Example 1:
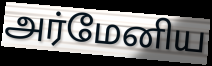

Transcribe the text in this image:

அர்மேனிய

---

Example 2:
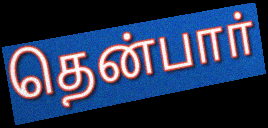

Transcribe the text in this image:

தென்பார்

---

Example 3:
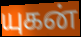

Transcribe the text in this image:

யுகன்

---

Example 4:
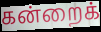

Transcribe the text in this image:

கன்றைக்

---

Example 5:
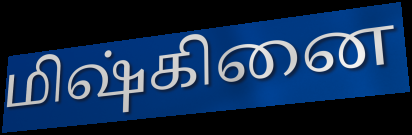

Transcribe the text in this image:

மிஷ்கினை